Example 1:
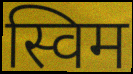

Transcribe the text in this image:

स्विम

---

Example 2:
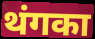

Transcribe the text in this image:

थंगका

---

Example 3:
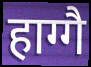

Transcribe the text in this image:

हाग्गै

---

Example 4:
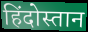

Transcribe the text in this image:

हिंदोस्तान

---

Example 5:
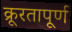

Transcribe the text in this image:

क्रूरतापूर्ण